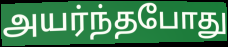
அயர்ந்தபோது